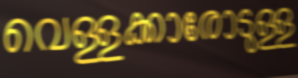
വെള്ളക്കാരോടുള്ള